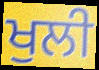
ਖੁਲੀ